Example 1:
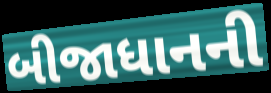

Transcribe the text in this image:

બીજાધાનની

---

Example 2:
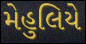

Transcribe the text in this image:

મેહુલિયે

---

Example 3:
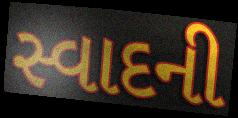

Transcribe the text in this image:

સ્વાદની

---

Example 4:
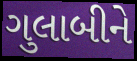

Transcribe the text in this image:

ગુલાબીને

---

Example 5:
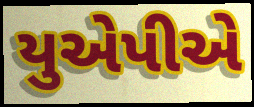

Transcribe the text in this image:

યુએપીએ